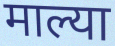
माल्या